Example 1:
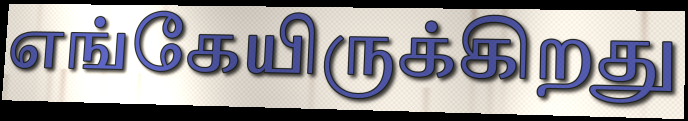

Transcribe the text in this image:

எங்கேயிருக்கிறது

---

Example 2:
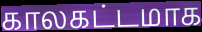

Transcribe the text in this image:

காலகட்டமாக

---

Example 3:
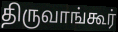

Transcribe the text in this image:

திருவாங்கூர்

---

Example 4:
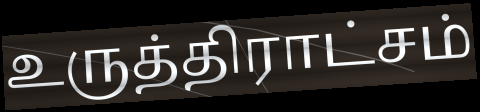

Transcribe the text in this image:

உருத்திராட்சம்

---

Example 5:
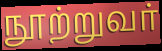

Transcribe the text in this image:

நூற்றுவர்